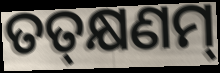
ତତ୍‌କ୍ଷଣମ୍